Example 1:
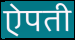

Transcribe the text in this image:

ऐपती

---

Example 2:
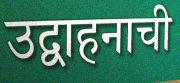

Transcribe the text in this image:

उद्वाहनाची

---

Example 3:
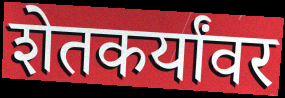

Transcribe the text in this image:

शेतकर्यांवर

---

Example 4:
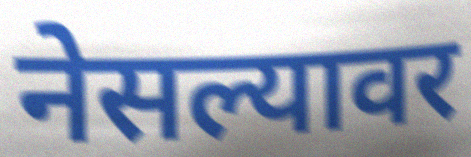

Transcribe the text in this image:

नेसल्यावर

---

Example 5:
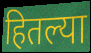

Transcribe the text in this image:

हितल्या